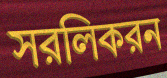
সরলিকরন